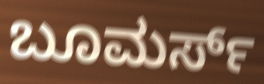
ಬೂಮರ್ಸ್